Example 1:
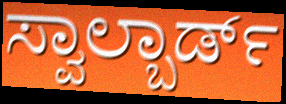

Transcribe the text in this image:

ಸ್ವಾಲ್ಬಾರ್ಡ್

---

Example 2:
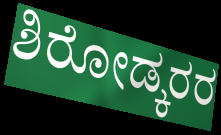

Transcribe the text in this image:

ಶಿರೋಡ್ಕರರ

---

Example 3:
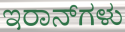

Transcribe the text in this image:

ಇರಾನ್‌ಗಳು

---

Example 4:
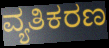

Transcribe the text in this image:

ವ್ಯತಿಕರಣ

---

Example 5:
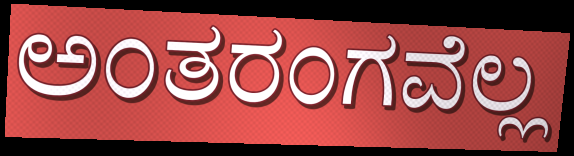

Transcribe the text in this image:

ಅಂತರಂಗವೆಲ್ಲ